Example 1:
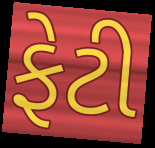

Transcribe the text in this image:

ફેટી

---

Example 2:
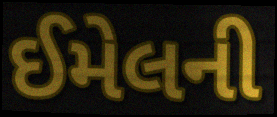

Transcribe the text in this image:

ઈમેલની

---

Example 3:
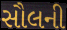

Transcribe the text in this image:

સૌલની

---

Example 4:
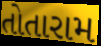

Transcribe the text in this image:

તોતારામ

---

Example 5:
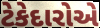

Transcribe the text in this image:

ટેકેદારોએ